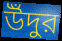
উঁদুর